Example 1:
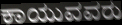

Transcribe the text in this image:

ಕಾಯುವವರು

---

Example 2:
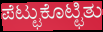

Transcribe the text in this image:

ಪೆಟ್ಟುಕೊಟ್ಟಿತು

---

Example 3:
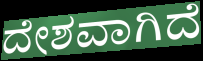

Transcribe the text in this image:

ದೇಶವಾಗಿದೆ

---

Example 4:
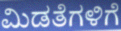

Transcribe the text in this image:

ಮಿಡತೆಗಳಿಗೆ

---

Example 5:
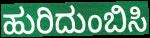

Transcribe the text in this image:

ಹುರಿದುಂಬಿಸಿ